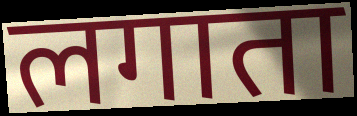
लगाता